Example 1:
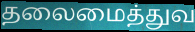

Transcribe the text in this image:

தலைமைத்துவ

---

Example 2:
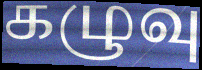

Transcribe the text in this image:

கழுவு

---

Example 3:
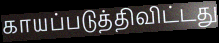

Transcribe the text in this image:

காயப்படுத்திவிட்டது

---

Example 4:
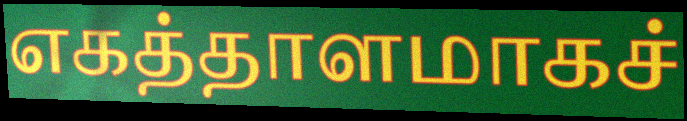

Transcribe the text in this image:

எகத்தாளமாகச்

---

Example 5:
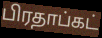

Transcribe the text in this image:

பிரதாப்கட்